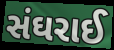
સંઘરાઈ